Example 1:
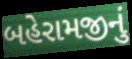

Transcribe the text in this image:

બહેરામજીનું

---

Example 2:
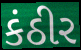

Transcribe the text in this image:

કંઠીર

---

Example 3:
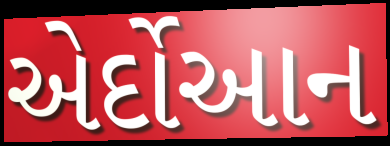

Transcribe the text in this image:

એર્દોઆન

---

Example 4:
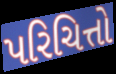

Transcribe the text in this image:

પરિચિત્તો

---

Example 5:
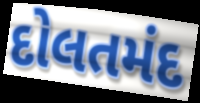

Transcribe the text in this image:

દોલતમંદ